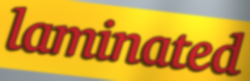
laminated